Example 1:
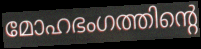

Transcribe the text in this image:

മോഹഭംഗത്തിന്റെ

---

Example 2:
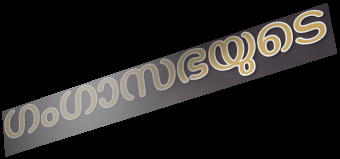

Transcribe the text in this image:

ഗംഗാസഭയുടെ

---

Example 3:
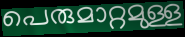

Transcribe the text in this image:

പെരുമാറ്റമുള്ള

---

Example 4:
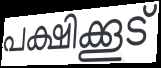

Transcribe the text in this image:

പക്ഷിക്കൂട്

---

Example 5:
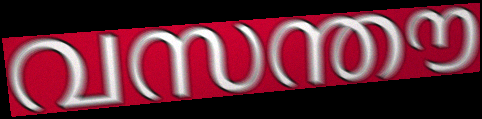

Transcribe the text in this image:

വസന്തൗ